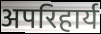
अपरिहार्य